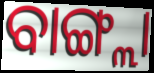
ବାଙ୍ଗ୍ଲା